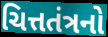
ચિત્તતંત્રનો